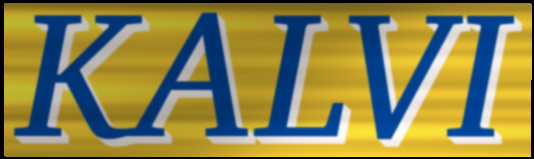
KALVI